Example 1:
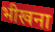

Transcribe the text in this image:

भीखना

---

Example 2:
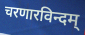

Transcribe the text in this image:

चरणारविन्दम्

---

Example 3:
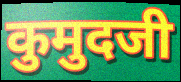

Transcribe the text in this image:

कुमुदजी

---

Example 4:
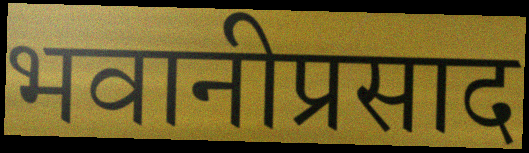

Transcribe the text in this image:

भवानीप्रसाद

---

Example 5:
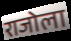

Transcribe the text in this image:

राजोला